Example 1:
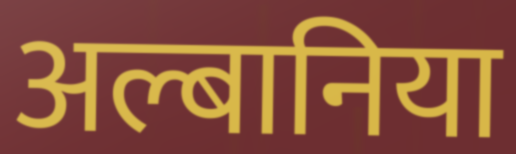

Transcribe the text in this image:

अल्बानिया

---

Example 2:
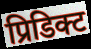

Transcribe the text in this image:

प्रिडिक्ट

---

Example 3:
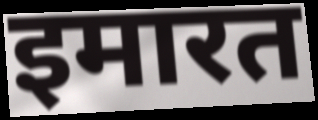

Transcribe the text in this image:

इमारत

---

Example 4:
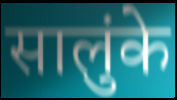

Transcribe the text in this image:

सालुंके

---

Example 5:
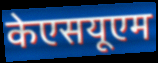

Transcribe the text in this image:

केएसयूएम